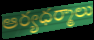
ఆర్యధర్మాలు